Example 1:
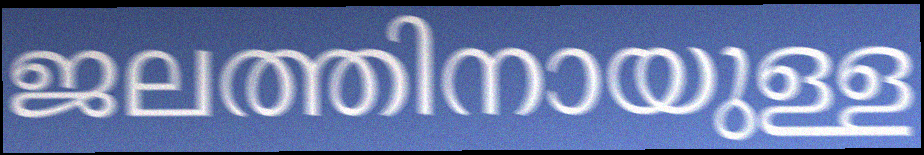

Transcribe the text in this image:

ജലത്തിനായുള്ള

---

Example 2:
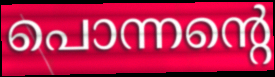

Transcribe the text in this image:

പൊന്നന്റെ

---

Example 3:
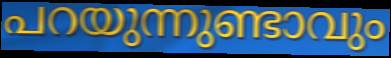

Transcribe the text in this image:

പറയുന്നുണ്ടാവും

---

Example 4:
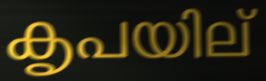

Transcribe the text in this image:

കൃപയില്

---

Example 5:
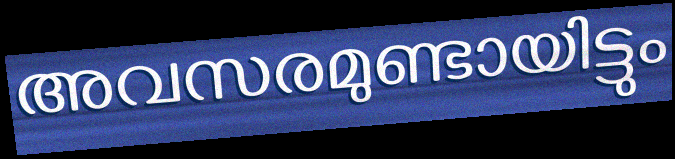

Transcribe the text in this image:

അവസരമുണ്ടായിട്ടും